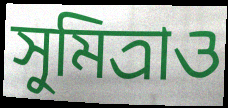
সুমিত্রাও